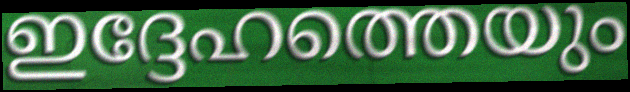
ഇദ്ദേഹത്തെയും